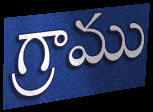
గ్రాము